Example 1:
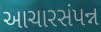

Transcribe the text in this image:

આચારસંપન્ન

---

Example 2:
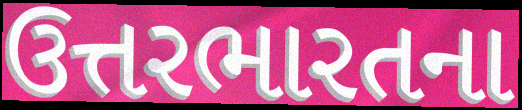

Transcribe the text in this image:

ઉત્તરભારતના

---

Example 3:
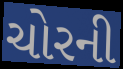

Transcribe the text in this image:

ચોરની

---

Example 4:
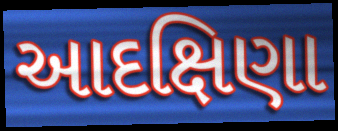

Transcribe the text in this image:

આદક્ષિણા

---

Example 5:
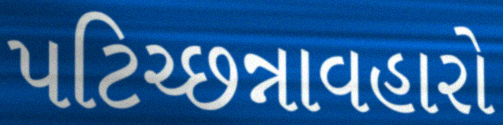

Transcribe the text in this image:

પટિચ્છન્નાવહારો